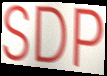
SDP